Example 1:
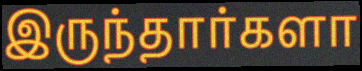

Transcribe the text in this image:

இருந்தார்களா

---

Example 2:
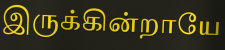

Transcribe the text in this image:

இருக்கின்றாயே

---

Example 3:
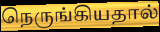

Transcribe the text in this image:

நெருங்கியதால்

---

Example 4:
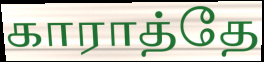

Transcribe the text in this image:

காராத்தே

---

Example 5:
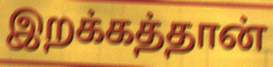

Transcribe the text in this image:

இறக்கத்தான்